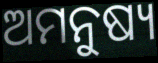
ଅମନୁଷ୍ୟ